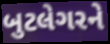
બુટલેગરને